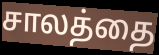
சாலத்தை